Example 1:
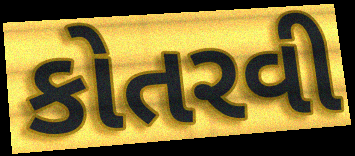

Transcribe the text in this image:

કોતરવી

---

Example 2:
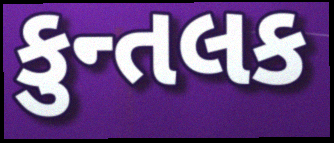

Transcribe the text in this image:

કુન્તલક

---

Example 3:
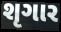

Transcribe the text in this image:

શૃગાર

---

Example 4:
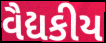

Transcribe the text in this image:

વૈદ્યકીય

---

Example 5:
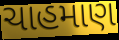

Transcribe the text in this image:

ચાહમાણ